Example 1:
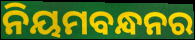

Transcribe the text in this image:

ନିୟମବନ୍ଧନର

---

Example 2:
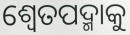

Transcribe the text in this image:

ଶ୍ୱେତପଦ୍ମାକୁ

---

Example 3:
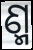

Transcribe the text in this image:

ଣ୍ମ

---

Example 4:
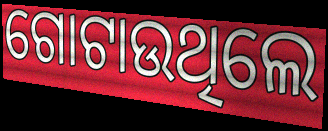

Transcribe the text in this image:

ଗୋଟାଉଥିଲେ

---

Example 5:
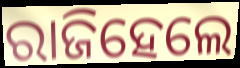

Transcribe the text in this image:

ରାଜିହେଲେ